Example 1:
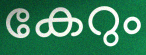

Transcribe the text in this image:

കേറും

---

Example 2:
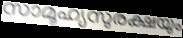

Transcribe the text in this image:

സാമൂഹ്യസുരക്ഷയും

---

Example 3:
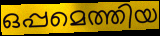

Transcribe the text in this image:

ഒപ്പമെത്തിയ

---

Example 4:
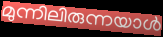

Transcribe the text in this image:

മുന്നിലിരുന്നയാൾ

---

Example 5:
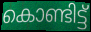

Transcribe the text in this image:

കൊണ്ടിട്ട്